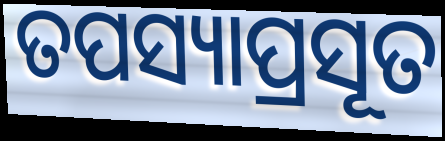
ତପସ୍ୟାପ୍ରସୂତ